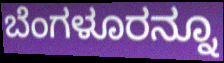
ಬೆಂಗಳೂರನ್ನೂ